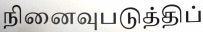
நினைவுபடுத்திப்